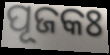
ପୂଜକଃ